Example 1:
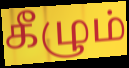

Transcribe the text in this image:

கீழும்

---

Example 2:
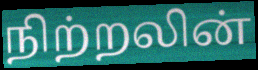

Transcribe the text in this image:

நிற்றலின்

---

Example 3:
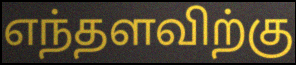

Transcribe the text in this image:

எந்தளவிற்கு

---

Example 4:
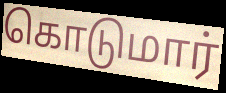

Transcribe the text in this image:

கொடுமார்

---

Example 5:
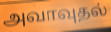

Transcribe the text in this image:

அவாவுதல்